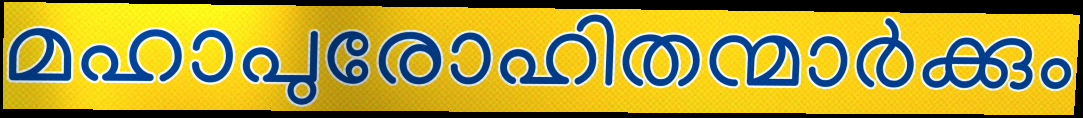
മഹാപുരോഹിതന്മാർക്കും